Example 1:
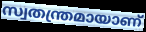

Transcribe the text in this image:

സ്വതന്ത്രമായാണ്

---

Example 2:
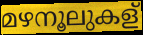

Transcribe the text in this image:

മഴനൂലുകള്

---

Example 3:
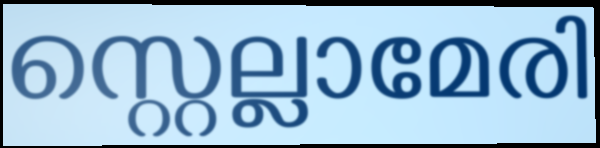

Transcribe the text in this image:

സ്റ്റെല്ലാമേരി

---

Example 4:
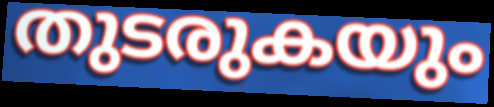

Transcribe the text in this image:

തുടരുകയും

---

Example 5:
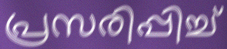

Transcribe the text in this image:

പ്രസരിപ്പിച്ച്